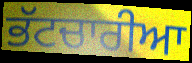
ਭੱਟਚਾਰੀਆ